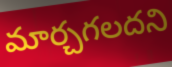
మార్చగలదని